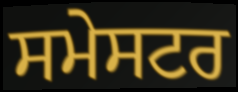
ਸਮੇਸਟਰ